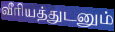
வீரியத்துடனும்